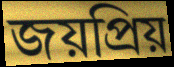
জয়প্রিয়